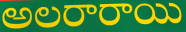
అలరారాయి